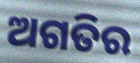
ଅଗତିର